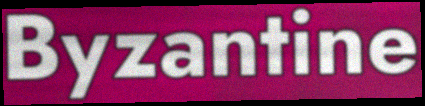
Byzantine